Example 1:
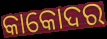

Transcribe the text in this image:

କାକୋଦର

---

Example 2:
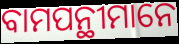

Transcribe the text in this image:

ବାମପନ୍ଥୀମାନେ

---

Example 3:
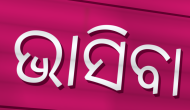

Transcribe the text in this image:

ଭାସିବା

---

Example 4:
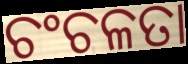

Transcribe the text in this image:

ଚଂଚଳତା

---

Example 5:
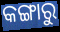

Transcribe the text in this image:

କଙ୍ଗାରୁ